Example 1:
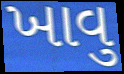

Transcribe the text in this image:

ખાવુ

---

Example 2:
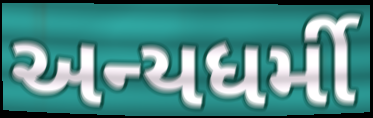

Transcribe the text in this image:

અન્યધર્મી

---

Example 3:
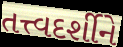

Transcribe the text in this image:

તત્ત્વદર્શીને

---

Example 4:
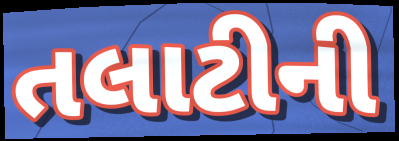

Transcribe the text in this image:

તલાટીની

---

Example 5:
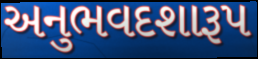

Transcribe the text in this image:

અનુભવદશારૂપ